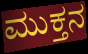
ಮುಕ್ತನ